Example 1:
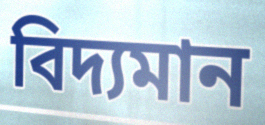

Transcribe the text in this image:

বিদ্যমান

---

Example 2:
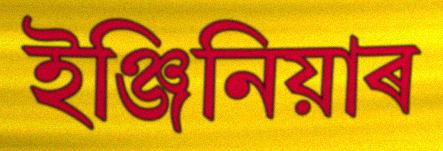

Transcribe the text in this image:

ইঞ্জিনিয়াৰ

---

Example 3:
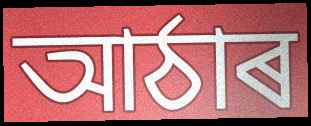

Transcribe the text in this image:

আঠাৰ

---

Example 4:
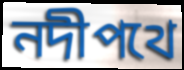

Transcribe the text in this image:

নদীপথে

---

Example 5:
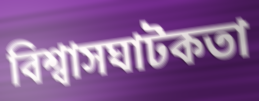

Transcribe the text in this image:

বিশ্বাসঘাটকতা